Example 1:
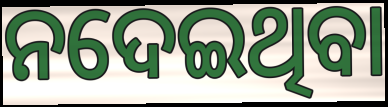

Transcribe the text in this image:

ନଦେଇଥିବା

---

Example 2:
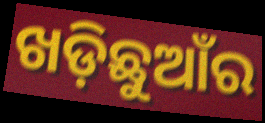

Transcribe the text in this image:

ଖଡ଼ିଛୁଆଁର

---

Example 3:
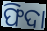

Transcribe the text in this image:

ଫିଦା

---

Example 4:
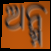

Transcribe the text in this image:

ଅନ୍ମ୍ନ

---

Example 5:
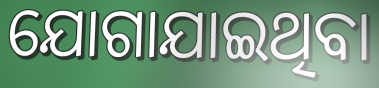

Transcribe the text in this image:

ଯୋଗାଯାଇଥିବା